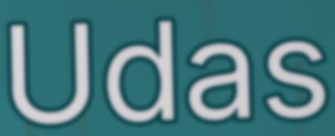
Udas